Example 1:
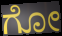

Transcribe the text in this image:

ಗೋ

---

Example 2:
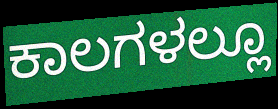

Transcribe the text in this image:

ಕಾಲಗಳಲ್ಲೂ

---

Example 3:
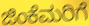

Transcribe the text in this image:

ಜಿಂಕೆಮರಿಗೆ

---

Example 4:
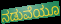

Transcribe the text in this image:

ನಡುವೆಯೂ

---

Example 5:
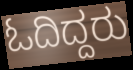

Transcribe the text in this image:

ಓದಿದ್ದರು